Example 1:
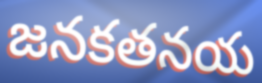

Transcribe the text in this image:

జనకతనయ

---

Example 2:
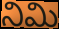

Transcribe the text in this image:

నిమి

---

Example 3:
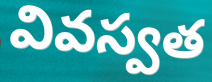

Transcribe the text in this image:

వివస్వత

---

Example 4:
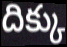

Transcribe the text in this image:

దిక్కు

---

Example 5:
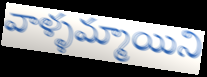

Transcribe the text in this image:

వాళ్ళమ్మాయిని